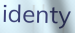
identy